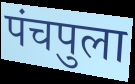
पंचपुला